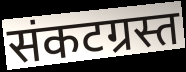
संकटग्रस्त